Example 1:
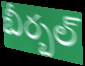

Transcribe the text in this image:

బీర్బల్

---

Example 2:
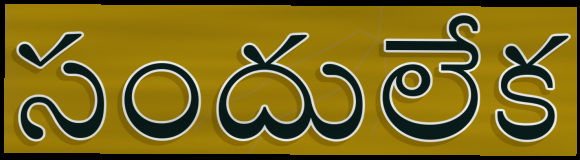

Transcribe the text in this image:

సందులేక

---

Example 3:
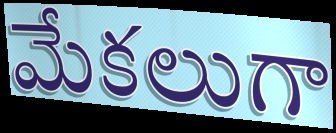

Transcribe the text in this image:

మేకలుగా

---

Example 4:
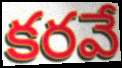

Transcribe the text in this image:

కరవే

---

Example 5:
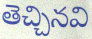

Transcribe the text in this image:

తెచ్చినవి